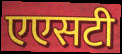
एएसटी